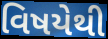
વિષયેથી